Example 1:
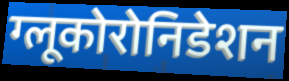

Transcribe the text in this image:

ग्लूकोरोनिडेशन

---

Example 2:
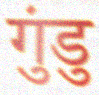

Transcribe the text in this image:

गुंडु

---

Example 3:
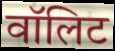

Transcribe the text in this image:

वॉलिट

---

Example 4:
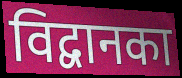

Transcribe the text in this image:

विद्वानका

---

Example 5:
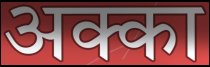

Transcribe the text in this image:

अक्का